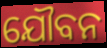
ଯୌବନ